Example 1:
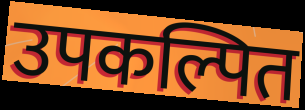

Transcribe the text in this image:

उपकल्पित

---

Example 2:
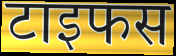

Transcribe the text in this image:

टाइफस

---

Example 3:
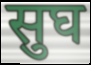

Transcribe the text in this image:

सुघ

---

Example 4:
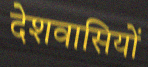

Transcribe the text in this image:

देशवासियों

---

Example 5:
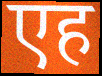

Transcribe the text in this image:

एह